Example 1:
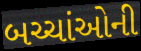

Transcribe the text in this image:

બચ્ચાંઓની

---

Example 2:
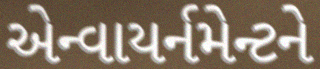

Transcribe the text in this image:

એન્વાયર્નમેન્ટને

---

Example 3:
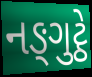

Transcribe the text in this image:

નઙ્ગુટ્ઠે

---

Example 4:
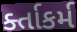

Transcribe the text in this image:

ર્ક્તાકર્મ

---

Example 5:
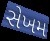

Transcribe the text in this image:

સેખમ